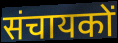
संचायकों